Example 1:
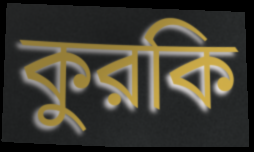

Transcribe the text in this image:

কুরকি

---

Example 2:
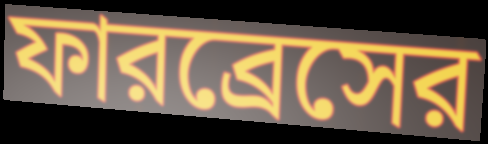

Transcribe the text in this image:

ফারব্রেসের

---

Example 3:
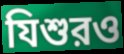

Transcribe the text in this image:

যিশুরও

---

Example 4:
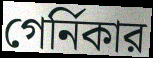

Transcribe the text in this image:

গের্নিকার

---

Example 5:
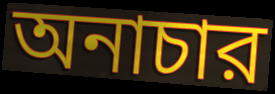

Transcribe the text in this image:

অনাচার